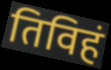
तिविहं